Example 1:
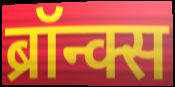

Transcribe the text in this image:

ब्रॉन्क्स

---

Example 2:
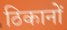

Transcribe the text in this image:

ठिकानों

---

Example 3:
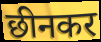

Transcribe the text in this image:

छीनकर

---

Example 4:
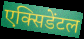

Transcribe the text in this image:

एक्सिडेंटल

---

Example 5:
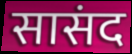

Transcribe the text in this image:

सासंद